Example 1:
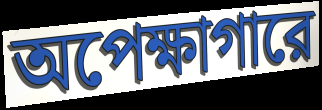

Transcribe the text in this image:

অপেক্ষাগারে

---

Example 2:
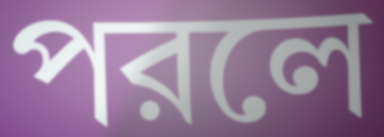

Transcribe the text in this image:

পরলে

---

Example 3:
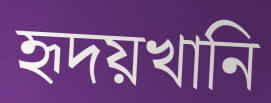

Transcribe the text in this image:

হৃদয়খানি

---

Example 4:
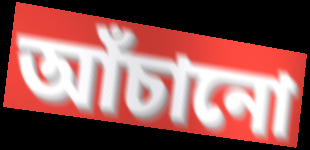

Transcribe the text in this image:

আঁচানো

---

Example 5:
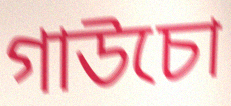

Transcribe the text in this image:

গাউচো